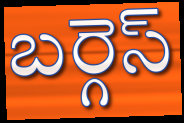
బర్గెస్